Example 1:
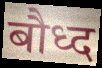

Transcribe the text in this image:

बौध्द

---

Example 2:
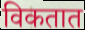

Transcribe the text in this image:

विकतात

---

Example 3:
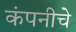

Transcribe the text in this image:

कंपनीचे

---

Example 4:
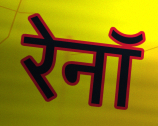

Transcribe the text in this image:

रेनॉ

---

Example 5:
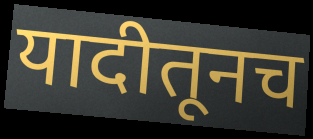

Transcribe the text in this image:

यादीतूनच